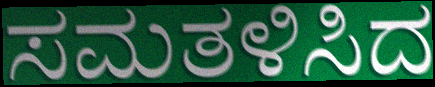
ಸಮತಳಿಸಿದ